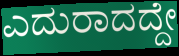
ಎದುರಾದದ್ದೇ